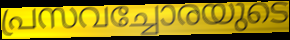
പ്രസവച്ചോരയുടെ